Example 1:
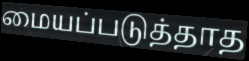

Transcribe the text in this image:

மையப்படுத்தாத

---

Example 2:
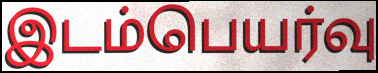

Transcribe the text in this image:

இடம்பெயர்வு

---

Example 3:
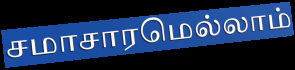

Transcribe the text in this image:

சமாசாரமெல்லாம்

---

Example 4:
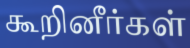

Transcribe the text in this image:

கூறினீர்கள்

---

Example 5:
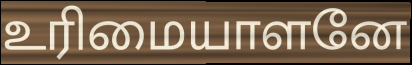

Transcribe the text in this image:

உரிமையாளனே